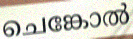
ചെങ്കോൽ